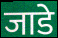
जाडे